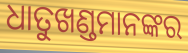
ଧାତୁଖଣ୍ଡମାନଙ୍କର